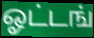
ஓட்டங்